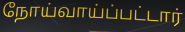
நோய்வாய்ப்பட்டார்